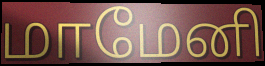
மாமேனி